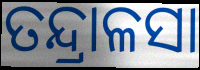
ତନ୍ଦ୍ରାଳସା